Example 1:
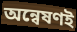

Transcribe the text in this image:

অন্বেষণই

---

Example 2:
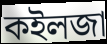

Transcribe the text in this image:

কইলজা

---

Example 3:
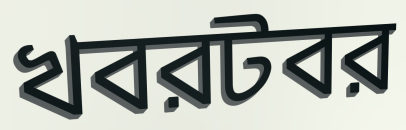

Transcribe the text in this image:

খবরটবর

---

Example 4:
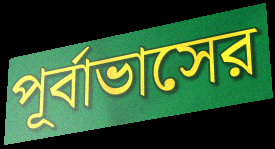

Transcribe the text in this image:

পূর্বাভাসের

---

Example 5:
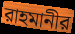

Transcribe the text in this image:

রাহমানীর